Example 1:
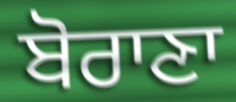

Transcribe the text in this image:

ਬੋਰਾਣਾ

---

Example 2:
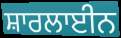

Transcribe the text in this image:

ਸ਼ਾਰਲਾਈਨ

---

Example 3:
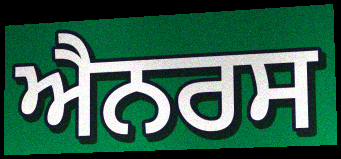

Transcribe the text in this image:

ਐਨਰਸ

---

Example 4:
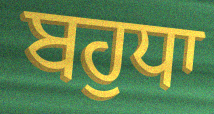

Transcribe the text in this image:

ਬਹੁਧਾ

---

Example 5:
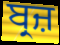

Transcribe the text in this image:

ਬ੍ਰਜ਼